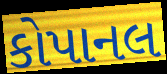
કોપાનલ